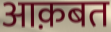
आक़बत